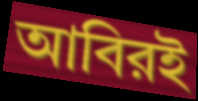
আবিরই